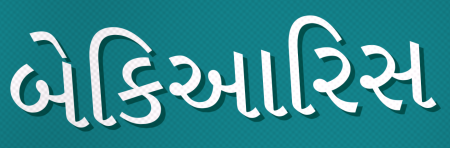
બેકિઆરિસ